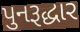
પુનરૂદ્ધાર